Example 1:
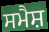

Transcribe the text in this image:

ਸਮੈਸ਼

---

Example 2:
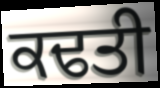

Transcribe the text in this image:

ਕਢਤੀ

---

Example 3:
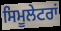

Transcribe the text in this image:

ਸਿਮੂਲੇਟਰਾਂ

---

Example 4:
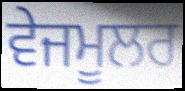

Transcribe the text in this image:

ਵੇਜਮੂਲਰ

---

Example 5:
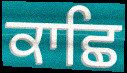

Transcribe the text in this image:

ਕਾਛਿ